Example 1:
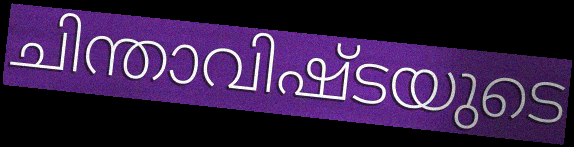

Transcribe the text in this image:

ചിന്താവിഷ്ടയുടെ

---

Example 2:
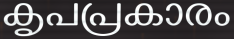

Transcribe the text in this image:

കൃപപ്രകാരം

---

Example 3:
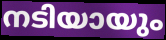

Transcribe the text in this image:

നടിയായും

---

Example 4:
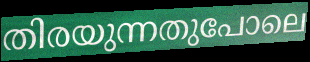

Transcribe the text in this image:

തിരയുന്നതുപോലെ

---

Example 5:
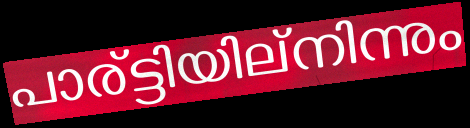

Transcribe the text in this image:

പാര്ട്ടിയില്നിന്നും